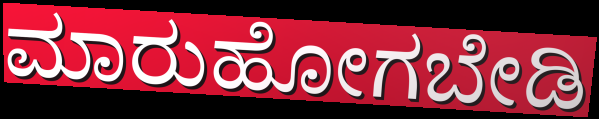
ಮಾರುಹೋಗಬೇಡಿ